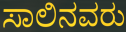
ಸಾಲಿನವರು